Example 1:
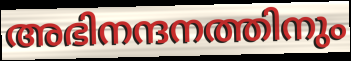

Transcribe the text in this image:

അഭിനന്ദനത്തിനും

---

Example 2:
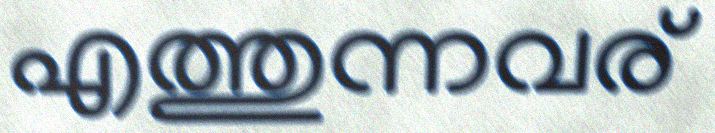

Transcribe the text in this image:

എത്തുന്നവര്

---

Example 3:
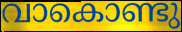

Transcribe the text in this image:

വാകൊണ്ടു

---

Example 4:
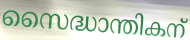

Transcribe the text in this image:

സൈദ്ധാന്തികന്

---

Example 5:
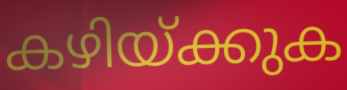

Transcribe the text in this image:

കഴിയ്ക്കുക